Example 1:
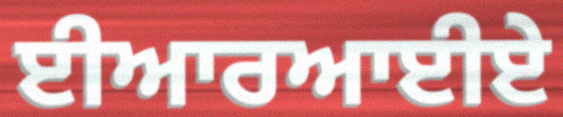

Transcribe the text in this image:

ਈਆਰਆਈਏ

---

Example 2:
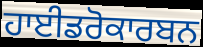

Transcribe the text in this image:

ਹਾਈਡਰੋਕਾਰਬਨ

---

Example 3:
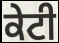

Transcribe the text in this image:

ਕੇਟੀ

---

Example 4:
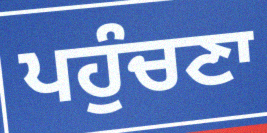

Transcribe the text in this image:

ਪਹੁੰਚਣਾ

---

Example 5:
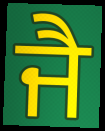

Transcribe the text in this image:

ਜੈ